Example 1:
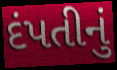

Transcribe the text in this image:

દંપતીનું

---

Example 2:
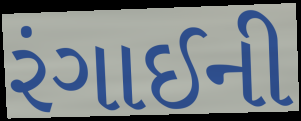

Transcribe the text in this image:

રંગાઈની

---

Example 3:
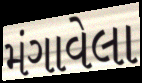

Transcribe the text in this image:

મંગાવેલા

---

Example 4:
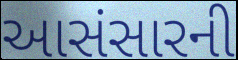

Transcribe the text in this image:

આસંસારની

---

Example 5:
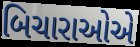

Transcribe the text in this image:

બિચારાઓએ